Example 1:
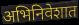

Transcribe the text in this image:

अभिनिवेशात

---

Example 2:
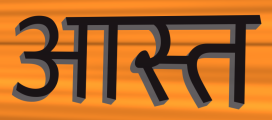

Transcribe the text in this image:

आस्त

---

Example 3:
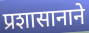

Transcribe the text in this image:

प्रशासानाने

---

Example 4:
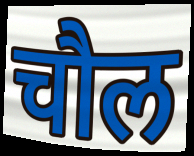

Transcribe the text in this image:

चौल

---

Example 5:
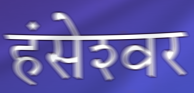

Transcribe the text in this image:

हंसेश्वर